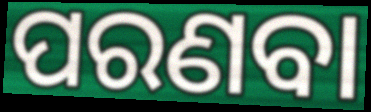
ପରଣବା